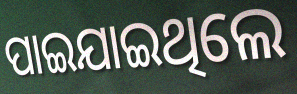
ପାଇଯାଇଥିଲେ